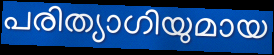
പരിത്യാഗിയുമായ